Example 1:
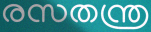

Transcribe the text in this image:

രസതന്ത്ര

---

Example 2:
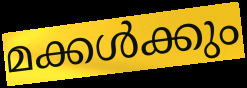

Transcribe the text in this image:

മക്കൾക്കും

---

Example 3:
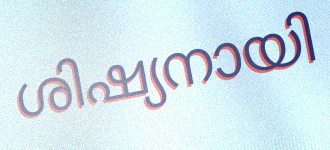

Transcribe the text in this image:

ശിഷ്യനായി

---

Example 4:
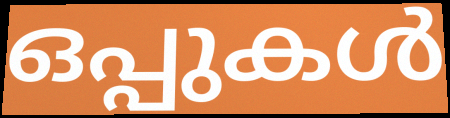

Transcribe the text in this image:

ഒപ്പുകൾ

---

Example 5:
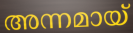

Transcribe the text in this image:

അന്നമായ്